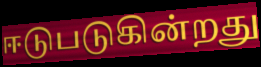
ஈடுபடுகின்றது